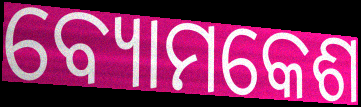
ବ୍ୟୋମକେଶ